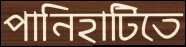
পানিহাটিতে